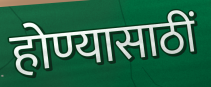
होण्यासाठीं